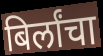
बिर्लांचा